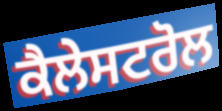
ਕੈਲੇਸਟਰੋਲ